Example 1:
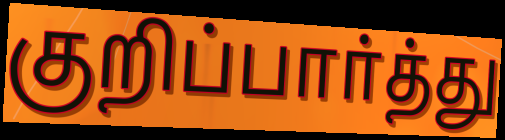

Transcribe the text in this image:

குறிப்பார்த்து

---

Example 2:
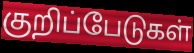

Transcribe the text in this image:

குறிப்பேடுகள்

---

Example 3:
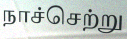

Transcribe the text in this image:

நாச்செற்று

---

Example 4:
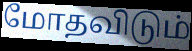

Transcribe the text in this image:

மோதவிடும்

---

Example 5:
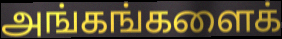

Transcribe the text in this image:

அங்கங்களைக்